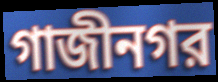
গাজীনগর